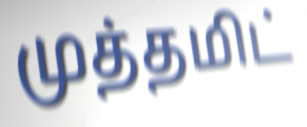
முத்தமிட்